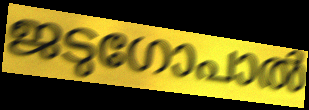
ജടുഗോപാൽ